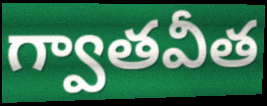
గ్వాతవీత